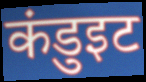
कंडुइट